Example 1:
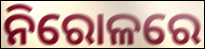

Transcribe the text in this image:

ନିରୋଳରେ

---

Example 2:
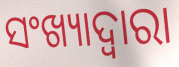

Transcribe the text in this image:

ସଂଖ୍ୟାଦ୍ୱାରା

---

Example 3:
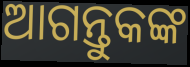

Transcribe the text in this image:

ଆଗନ୍ତୁକଙ୍କ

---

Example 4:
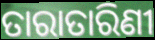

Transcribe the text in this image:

ତାରାତାରିଣୀ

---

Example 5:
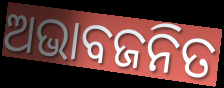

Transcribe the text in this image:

ଅଭାବଜନିତ